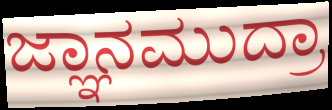
ಜ್ಞಾನಮುದ್ರಾ